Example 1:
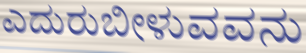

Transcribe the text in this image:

ಎದುರುಬೀಳುವವನು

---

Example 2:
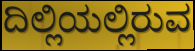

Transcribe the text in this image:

ದಿಲ್ಲಿಯಲ್ಲಿರುವ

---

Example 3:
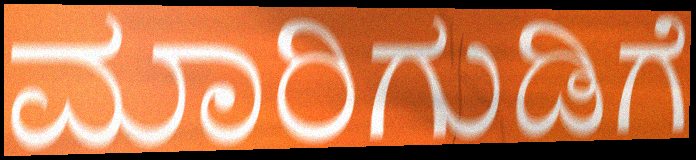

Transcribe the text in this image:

ಮಾರಿಗುಡಿಗೆ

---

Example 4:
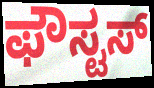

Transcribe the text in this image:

ಫೌಸ್ಟಸ್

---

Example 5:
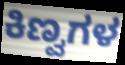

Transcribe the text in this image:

ಕಿಣ್ವಗಳ